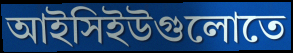
আইসিইউগুলোতে